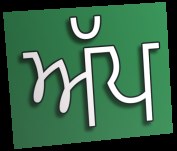
ਅੱਪ